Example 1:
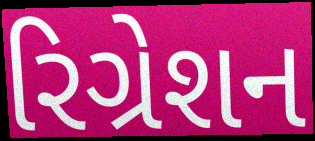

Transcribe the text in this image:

રિગ્રેશન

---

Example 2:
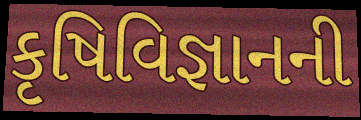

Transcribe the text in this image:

કૃષિવિજ્ઞાનની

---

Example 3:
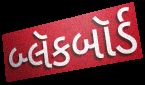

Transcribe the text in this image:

બ્લૅકબૉર્ડ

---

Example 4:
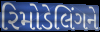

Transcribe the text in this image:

રિમોડેલિંગને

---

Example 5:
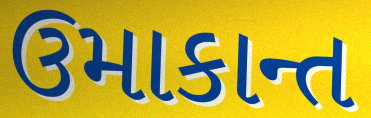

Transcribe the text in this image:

ઉમાકાન્ત